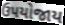
ઉપયોજાય